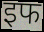
इफ